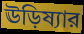
ঊড়িষ্যার